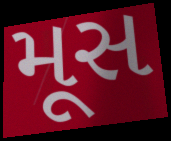
મૂસ